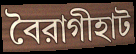
বৈরাগীহাট